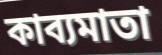
কাব্যমাতা